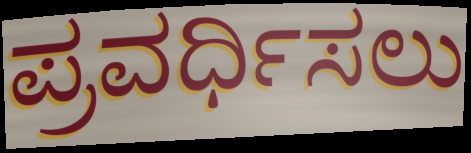
ಪ್ರವರ್ಧಿಸಲು